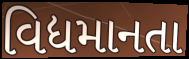
વિદ્યમાનતા